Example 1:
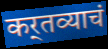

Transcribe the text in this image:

कर्तव्याचं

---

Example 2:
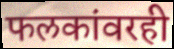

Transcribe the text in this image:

फलकांवरही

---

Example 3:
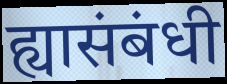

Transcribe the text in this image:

ह्यासंबंधी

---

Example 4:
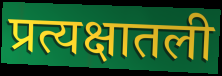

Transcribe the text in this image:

प्रत्यक्षातली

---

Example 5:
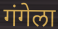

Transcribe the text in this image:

गंगेला